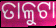
ତାଳୁଟା